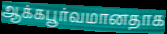
ஆக்கபூர்வமானதாக